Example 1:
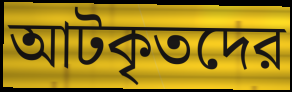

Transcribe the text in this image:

আটকৃতদের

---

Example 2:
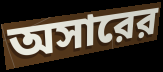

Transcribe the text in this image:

অসারের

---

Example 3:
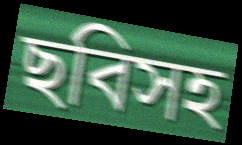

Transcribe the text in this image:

ছবিসহ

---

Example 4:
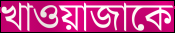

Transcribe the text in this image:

খাওয়াজাকে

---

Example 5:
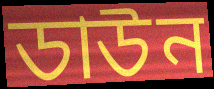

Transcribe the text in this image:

ডাউন